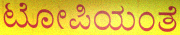
ಟೋಪಿಯಂತೆ